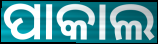
ପାକାଲ